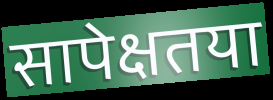
सापेक्षतया